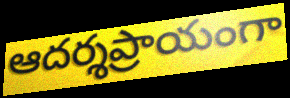
ఆదర్శప్రాయంగా